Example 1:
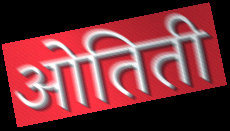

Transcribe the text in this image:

ओतिती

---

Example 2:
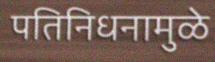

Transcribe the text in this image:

पतिनिधनामुळे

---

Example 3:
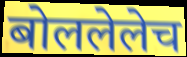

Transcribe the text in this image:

बोललेलेच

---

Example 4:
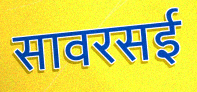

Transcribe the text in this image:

सावरसई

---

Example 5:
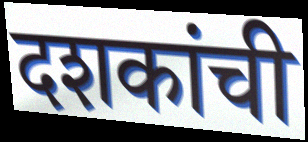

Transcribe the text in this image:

दशकांची